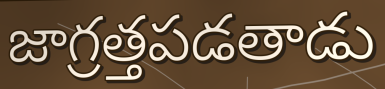
జాగ్రత్తపడతాడు